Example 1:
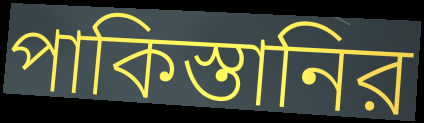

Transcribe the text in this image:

পাকিস্তানির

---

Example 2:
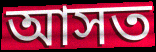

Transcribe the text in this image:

আসত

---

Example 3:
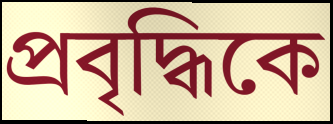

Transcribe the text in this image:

প্রবৃদ্ধিকে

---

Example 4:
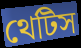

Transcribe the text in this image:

থেটিস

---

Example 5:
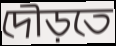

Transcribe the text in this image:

দৌড়তে